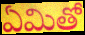
ఏమితో